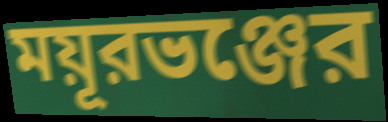
ময়ূরভঞ্জের